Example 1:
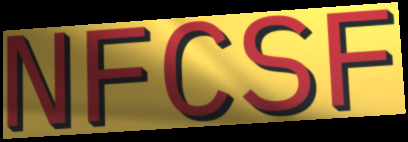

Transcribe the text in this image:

NFCSF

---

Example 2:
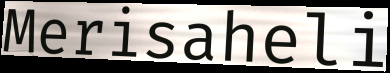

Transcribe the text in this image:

Merisaheli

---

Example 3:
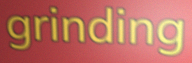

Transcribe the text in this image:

grinding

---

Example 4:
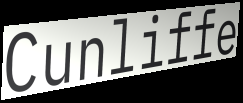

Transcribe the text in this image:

Cunliffe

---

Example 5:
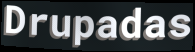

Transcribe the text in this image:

Drupadas